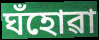
ঘঁহোৱা